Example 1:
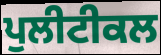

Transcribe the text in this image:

ਪੁਲੀਟੀਕਲ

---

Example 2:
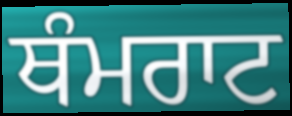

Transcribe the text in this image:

ਥੰਮਰਾਟ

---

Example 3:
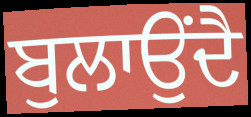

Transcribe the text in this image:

ਬੁਲਾਉਂਦੈ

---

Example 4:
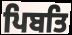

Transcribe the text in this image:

ਪਿਬਤਿ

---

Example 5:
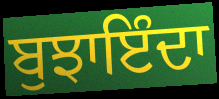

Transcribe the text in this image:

ਬੁਝਾਇੰਦਾ